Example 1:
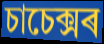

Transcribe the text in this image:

চাচেক্সৰ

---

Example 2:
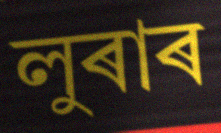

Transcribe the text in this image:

লুৰাৰ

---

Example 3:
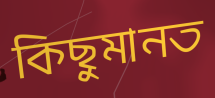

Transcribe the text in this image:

কিছুমানত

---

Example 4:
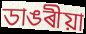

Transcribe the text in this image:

ডাঙৰীয়া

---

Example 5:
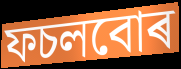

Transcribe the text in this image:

ফচলবোৰ